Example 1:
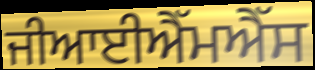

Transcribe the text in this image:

ਜੀਆਈਐੱਮਐੱਸ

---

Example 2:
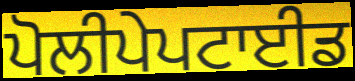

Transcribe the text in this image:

ਪੋਲੀਪੇਪਟਾਈਡ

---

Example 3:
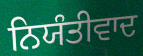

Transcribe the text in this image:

ਨਿਯੰਤੀਵਾਦ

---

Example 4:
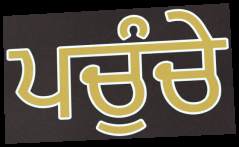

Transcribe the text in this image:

ਪਚੁੰਚੇ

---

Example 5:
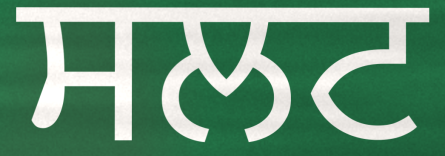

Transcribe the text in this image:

ਸਲਟ